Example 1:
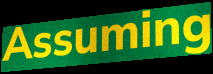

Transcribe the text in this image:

Assuming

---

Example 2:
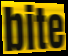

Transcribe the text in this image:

bite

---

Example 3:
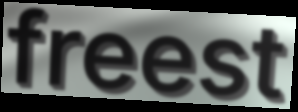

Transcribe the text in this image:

freest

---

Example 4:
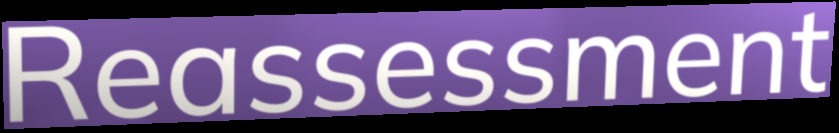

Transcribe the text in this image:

Reassessment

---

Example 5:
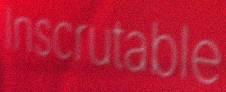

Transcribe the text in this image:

Inscrutable